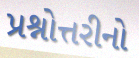
પ્રશ્નોત્તરીનો